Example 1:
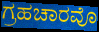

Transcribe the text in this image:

ಗ್ರಹಚಾರವೊ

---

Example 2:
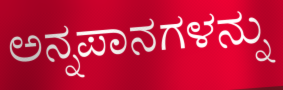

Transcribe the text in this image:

ಅನ್ನಪಾನಗಳನ್ನು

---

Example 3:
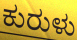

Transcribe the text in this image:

ಕುರುಳು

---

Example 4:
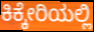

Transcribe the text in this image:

ಕಿಕ್ಕೇರಿಯಲ್ಲಿ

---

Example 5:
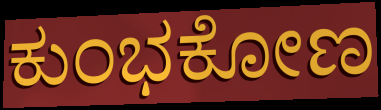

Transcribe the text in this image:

ಕುಂಭಕೋಣ